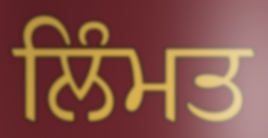
ਲਿੰਮਤ